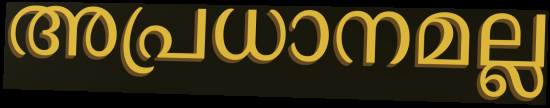
അപ്രധാനമല്ല